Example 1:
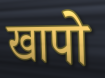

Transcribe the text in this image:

खापो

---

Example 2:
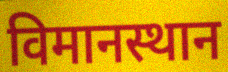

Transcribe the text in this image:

विमानस्थान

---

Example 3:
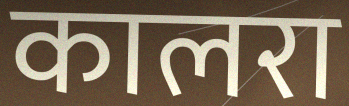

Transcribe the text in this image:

कालरा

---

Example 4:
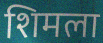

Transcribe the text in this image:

शिमला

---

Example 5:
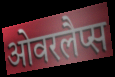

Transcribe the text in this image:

ओवरलैप्स